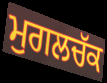
ਮੁਗਲਚੱਕ